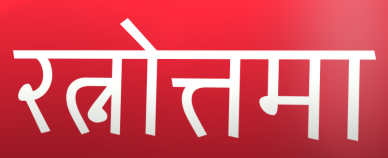
रत्नोत्तमा